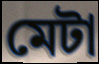
মেটা